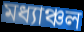
মধ্যাঞ্চল